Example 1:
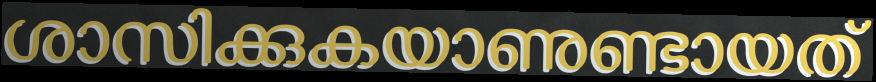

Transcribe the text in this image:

ശാസിക്കുകയാണുണ്ടായത്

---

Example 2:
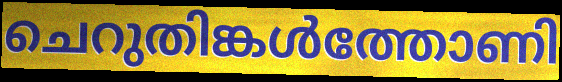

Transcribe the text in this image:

ചെറുതിങ്കൾത്തോണി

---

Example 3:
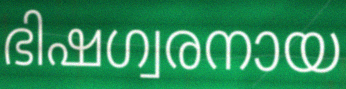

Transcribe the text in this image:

ഭിഷഗ്വരനായ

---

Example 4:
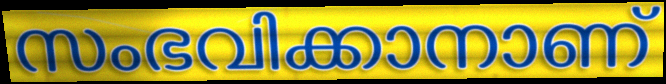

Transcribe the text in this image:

സംഭവിക്കാനാണ്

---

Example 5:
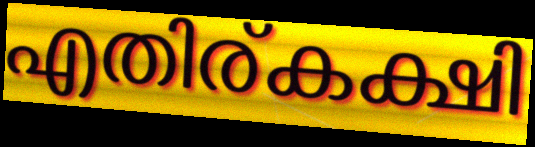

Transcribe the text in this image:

എതിര്കക്ഷി